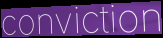
conviction